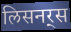
लिसनर्स